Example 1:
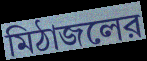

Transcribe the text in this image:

মিঠাজলের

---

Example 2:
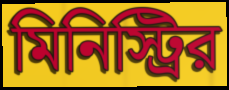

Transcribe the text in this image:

মিনিস্ট্রির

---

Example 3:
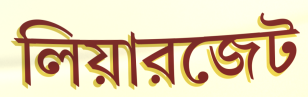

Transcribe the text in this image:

লিয়ারজেট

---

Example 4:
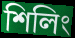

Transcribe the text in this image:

শিলিং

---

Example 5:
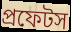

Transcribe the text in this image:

প্রফেটস